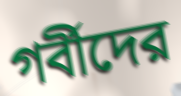
গর্বীদের